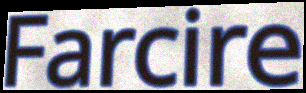
Farcire